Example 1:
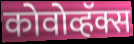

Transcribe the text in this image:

कोवोव्हॅक्स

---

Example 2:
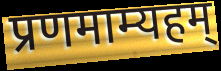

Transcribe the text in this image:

प्रणमाम्यहम्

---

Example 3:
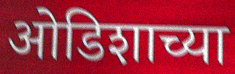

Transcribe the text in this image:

ओडिशाच्या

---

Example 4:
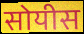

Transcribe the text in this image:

सोयीस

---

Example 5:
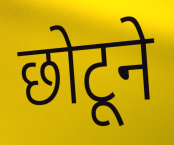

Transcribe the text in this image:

छोटूने